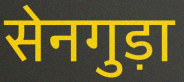
सेनगुड़ा